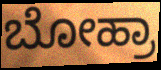
ಬೋಹ್ರಾ